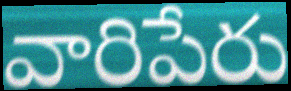
వారిపేరు